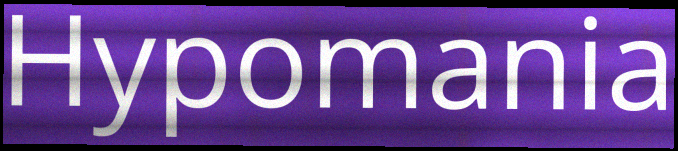
Hypomania